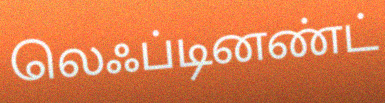
லெஃப்டினண்ட்